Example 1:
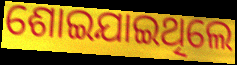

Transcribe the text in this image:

ଶୋଇଯାଇଥିଲେ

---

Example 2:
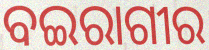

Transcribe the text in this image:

ବଇରାଗୀର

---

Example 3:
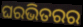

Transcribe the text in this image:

ଘରଭିତରର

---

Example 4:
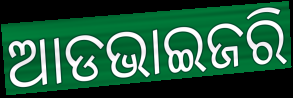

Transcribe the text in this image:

ଆଡଭାଇଜରି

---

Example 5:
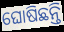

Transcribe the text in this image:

ଘୋଷିଛନ୍ତି